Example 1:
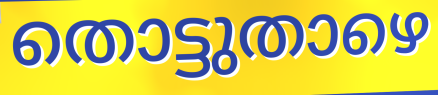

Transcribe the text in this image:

തൊട്ടുതാഴെ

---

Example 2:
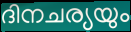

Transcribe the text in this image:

ദിനചര്യയും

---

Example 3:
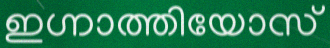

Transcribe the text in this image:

ഇഗ്നാത്തിയോസ്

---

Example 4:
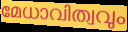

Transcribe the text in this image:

മേധാവിത്വവും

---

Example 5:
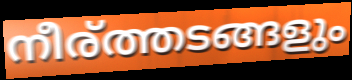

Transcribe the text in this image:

നീര്ത്തടങ്ങളും